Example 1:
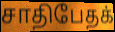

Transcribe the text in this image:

சாதிபேதக்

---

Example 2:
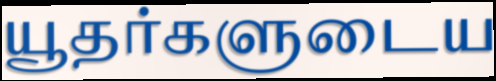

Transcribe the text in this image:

யூதர்களுடைய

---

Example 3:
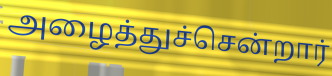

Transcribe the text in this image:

அழைத்துச்சென்றார்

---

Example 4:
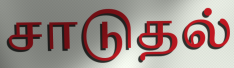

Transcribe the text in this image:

சாடுதல்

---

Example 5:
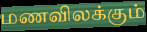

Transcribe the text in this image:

மணவிலக்கும்